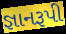
જ્ઞાનરૂપી